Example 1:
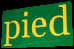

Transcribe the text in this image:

pied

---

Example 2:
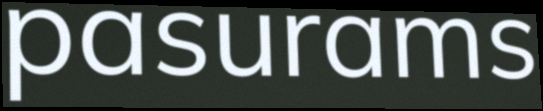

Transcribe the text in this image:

pasurams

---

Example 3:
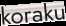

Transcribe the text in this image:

koraku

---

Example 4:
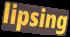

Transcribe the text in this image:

lipsing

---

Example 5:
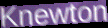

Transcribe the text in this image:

Knewton